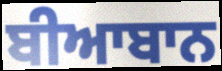
ਬੀਆਬਾਨ